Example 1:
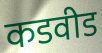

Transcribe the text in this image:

कडवीड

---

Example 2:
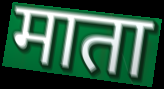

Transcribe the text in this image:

माता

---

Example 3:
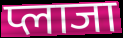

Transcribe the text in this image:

प्लाजा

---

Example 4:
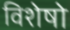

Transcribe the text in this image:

विशेषो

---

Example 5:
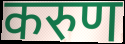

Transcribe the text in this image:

करुण